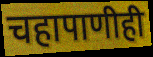
चहापाणीही